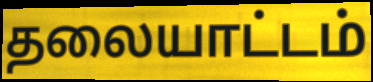
தலையாட்டம்